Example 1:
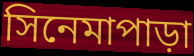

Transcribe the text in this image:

সিনেমাপাড়া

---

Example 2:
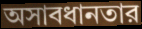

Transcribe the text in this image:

অসাবধানতার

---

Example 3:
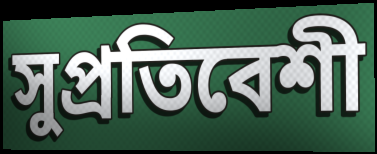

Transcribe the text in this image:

সুপ্রতিবেশী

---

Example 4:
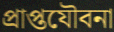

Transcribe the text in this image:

প্রাপ্তযৌবনা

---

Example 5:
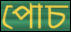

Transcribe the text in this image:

পোচ